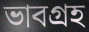
ভাবগ্রহ